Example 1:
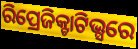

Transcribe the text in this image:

ରିପ୍ରେଜିକ୍ଟାଟିଭ୍ସରେ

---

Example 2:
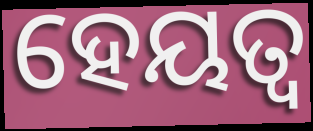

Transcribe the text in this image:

ହେୟତ୍ୱ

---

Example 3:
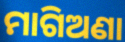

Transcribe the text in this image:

ମାଗିଅଣା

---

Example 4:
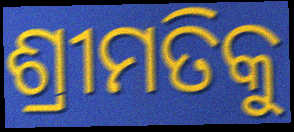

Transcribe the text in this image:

ଶ୍ରୀମତିକୁ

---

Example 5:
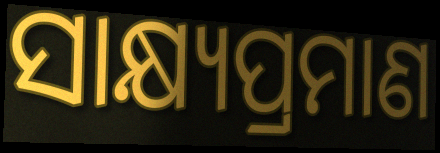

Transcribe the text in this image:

ସାକ୍ଷ୍ୟପ୍ରମାଣ